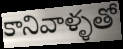
కానివాళ్ళతో